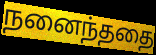
நனைந்ததை